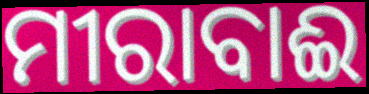
ମୀରାବାଈ